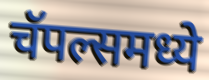
चॅपल्समध्ये